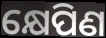
କ୍ଷେପିଣ